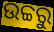
ଉଚ୍ଚରୁ